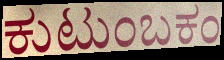
ಕುಟುಂಬಕಂ